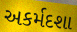
અકર્મદશા